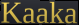
Kaaka